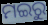
ମଇରୁ